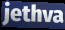
jethva